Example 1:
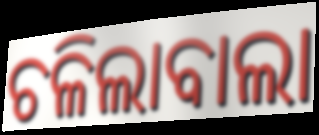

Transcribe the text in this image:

ଚଳିଲାବାଲା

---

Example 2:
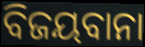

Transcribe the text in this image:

ବିଜୟବାନା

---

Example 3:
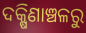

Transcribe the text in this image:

ଦକ୍ଷିଣାଞ୍ଚଳରୁ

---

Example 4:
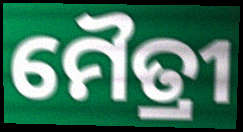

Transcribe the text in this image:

ମୈତ୍ରୀ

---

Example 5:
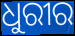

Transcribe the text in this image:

ଧୁରୀର